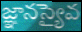
జ్ఞానస్యైవ